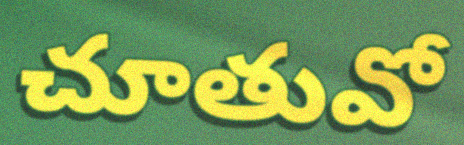
చూతువో